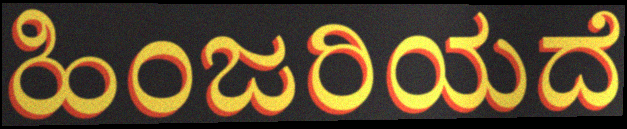
ಹಿಂಜರಿಯದೆ